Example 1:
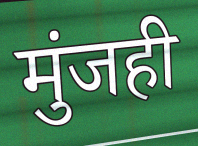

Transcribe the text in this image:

मुंजही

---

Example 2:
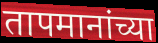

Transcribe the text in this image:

तापमानांच्या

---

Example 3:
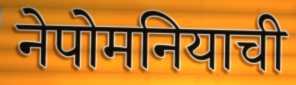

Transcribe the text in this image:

नेपोमनियाची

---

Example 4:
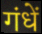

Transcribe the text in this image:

गंधें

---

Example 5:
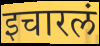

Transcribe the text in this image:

इचारलं